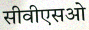
सीवीएसओ